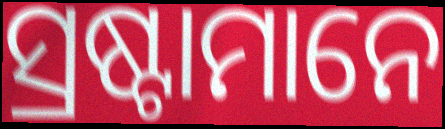
ସ୍ରଷ୍ଟାମାନେ